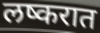
लष्करात